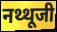
नथ्थूजी